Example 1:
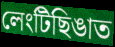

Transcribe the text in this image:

লেংটিছিঙাত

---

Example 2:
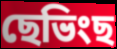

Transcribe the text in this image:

ছেভিংছ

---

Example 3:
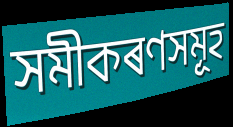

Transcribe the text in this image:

সমীকৰণসমূহ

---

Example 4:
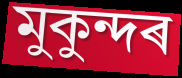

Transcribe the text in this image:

মুকুন্দৰ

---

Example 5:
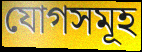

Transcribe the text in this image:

যোগসমূহ